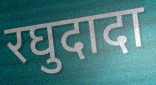
रघुदादा